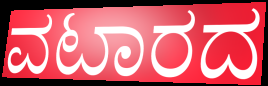
ವಟಾರದ